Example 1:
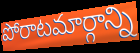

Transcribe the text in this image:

పోరాటమార్గాన్ని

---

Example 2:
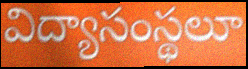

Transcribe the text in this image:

విద్యాసంస్థలూ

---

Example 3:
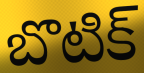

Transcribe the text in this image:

బొటిక్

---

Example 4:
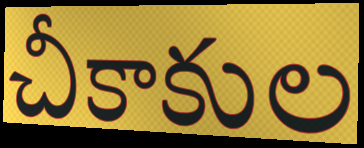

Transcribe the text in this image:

చీకాకుల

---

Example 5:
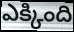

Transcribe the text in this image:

ఎక్కింది